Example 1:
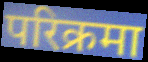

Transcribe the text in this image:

परिक्रमा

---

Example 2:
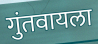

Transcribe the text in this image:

गुंतवायला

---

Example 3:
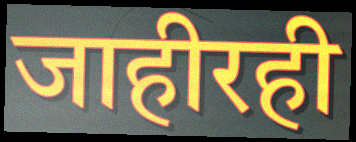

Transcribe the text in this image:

जाहीरही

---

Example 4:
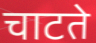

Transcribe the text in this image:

चाटते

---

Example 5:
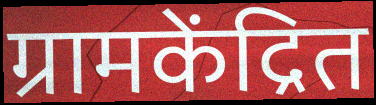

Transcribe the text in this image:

ग्रामकेंद्रित